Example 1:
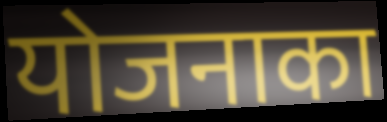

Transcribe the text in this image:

योजनाका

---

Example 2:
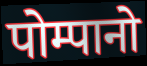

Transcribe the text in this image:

पोम्पानो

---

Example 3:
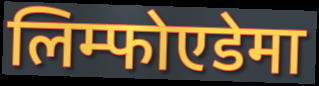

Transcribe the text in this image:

लिम्फोएडेमा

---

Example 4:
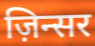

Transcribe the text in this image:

ज़िन्सर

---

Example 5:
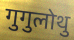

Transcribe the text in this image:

गुगुलोथु